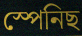
স্পেনিছ